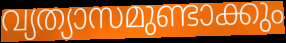
വ്യത്യാസമുണ്ടാക്കും